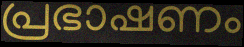
പ്രഭാഷണം